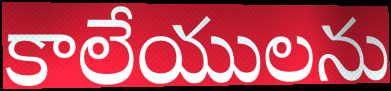
కాలేయులను